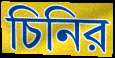
চিনির